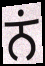
ਨਂ